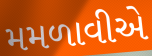
મમળાવીએ